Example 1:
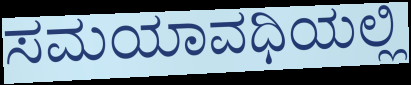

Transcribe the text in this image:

ಸಮಯಾವಧಿಯಲ್ಲಿ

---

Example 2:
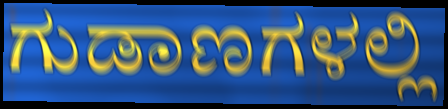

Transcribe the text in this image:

ಗುಡಾಣಗಳಲ್ಲಿ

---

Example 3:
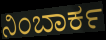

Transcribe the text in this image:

ನಿಂಬಾರ್ಕ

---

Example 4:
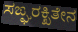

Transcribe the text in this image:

ಸಙ್ಘರಕ್ಖಿತೇನ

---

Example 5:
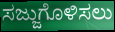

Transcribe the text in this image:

ಸಜ್ಜುಗೊಳಿಸಲು